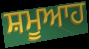
ਸ਼ਮੂਆਹ